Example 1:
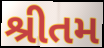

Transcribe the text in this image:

શ્રીતમ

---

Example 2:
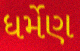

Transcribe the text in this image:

ધર્મેણ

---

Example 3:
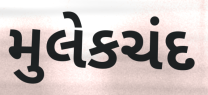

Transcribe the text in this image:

મુલેકચંદ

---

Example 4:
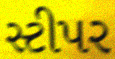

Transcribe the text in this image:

સ્ટીપર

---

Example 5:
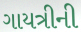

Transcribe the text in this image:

ગાયત્રીની